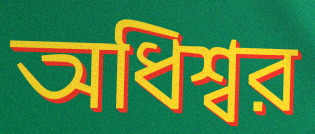
অধিশ্বর